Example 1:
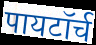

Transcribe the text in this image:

पायटॉर्च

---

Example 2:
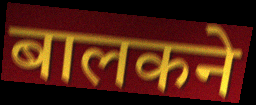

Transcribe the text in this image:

बालकने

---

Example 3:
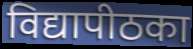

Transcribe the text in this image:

विद्यापीठका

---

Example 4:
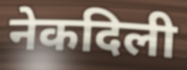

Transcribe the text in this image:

नेकदिली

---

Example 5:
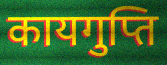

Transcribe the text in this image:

कायगुप्ति